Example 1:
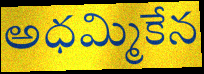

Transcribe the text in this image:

అధమ్మికేన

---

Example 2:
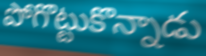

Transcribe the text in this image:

పోగొట్టుకొన్నాడు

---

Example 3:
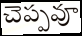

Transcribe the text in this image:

చెప్పవూ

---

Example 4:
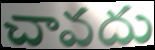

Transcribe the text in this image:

చావదు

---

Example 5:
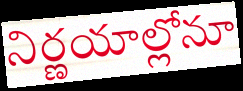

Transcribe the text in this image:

నిర్ణయాల్లోనూ